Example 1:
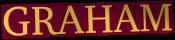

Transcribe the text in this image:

GRAHAM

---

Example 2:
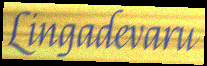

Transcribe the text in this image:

Lingadevaru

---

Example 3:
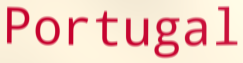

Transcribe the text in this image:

Portugal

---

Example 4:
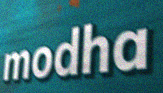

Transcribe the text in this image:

modha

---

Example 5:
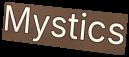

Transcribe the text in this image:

Mystics